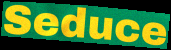
Seduce